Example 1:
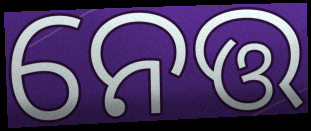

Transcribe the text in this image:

ନେତ୍ତ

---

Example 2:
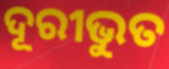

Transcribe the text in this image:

ଦୂରୀଭୁତ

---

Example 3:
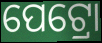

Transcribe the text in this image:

ପେଟ୍ରୋ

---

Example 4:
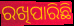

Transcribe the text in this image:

ରଖିପାରିଛି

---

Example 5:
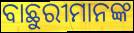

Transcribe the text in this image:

ବାଛୁରୀମାନଙ୍କ